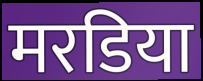
मरडिया